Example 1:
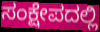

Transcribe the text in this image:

ಸಂಕ್ಷೇಪದಲ್ಲಿ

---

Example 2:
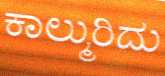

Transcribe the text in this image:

ಕಾಲ್ಮುರಿದು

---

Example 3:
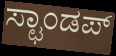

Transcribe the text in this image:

ಸ್ಟಾಂಡಪ್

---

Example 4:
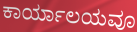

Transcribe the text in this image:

ಕಾರ್ಯಾಲಯವೂ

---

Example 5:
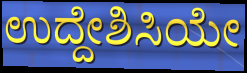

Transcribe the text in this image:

ಉದ್ದೇಶಿಸಿಯೇ